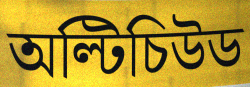
অল্টিচিউড